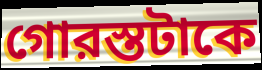
গোরস্তটাকে